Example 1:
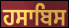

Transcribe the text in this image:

ਹਸਾਬਿਸ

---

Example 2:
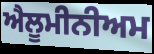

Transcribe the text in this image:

ਐਲੂਮੀਨੀਅਮ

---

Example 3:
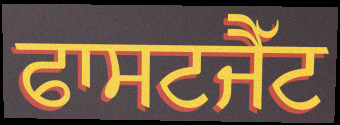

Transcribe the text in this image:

ਫਾਸਟਜੈੱਟ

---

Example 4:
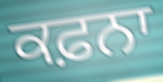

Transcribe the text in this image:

ਕਫ਼ਨਾ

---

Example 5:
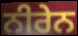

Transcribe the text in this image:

ਨੀਰੇਨ